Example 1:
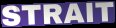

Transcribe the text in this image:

STRAIT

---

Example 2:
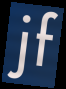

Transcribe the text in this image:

jf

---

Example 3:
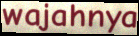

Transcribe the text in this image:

wajahnya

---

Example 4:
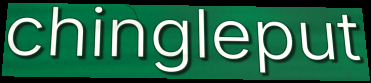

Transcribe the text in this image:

chingleput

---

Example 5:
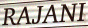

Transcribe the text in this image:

RAJANI